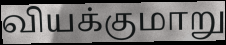
வியக்குமாறு